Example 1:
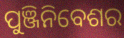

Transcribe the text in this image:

ପୁଞ୍ଜିନିବେଶର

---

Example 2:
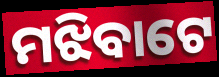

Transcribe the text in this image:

ମଝିବାଟେ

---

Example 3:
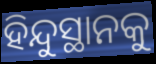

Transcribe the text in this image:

ହିନ୍ଦୁସ୍ଥାନକୁ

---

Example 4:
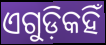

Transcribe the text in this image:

ଏଗୁଡ଼ିକହିଁ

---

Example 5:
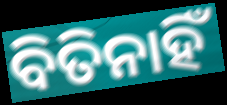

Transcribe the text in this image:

ବିତିନାହିଁ